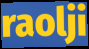
raolji